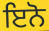
ਇਨੋ